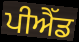
ਪੀਐੱਡ